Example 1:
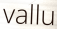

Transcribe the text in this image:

vallu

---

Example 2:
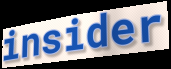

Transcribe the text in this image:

insider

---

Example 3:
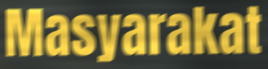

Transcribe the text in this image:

Masyarakat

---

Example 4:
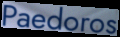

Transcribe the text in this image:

Paedoros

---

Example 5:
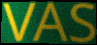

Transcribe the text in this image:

VAS